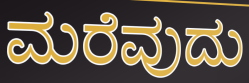
ಮರೆವುದು